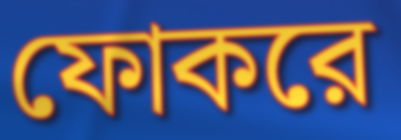
ফোকরে